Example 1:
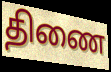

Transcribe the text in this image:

திணை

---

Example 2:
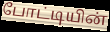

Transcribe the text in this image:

போட்டியின்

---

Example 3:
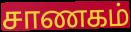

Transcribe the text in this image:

சாணகம்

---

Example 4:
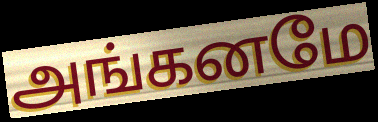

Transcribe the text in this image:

அங்கனமே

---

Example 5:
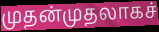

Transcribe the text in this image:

முதன்முதலாகச்